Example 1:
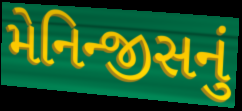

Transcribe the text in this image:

મેનિન્જીસનું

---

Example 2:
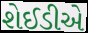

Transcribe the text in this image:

શેઈડીએ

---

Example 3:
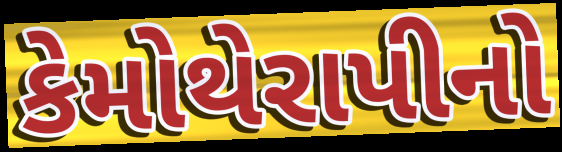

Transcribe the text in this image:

કેમોથેરાપીનો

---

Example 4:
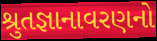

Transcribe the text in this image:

શ્રુતજ્ઞાનાવરણનો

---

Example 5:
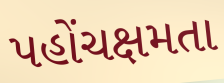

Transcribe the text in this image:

પહોંચક્ષમતા